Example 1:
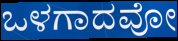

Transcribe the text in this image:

ಒಳಗಾದವೋ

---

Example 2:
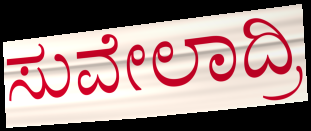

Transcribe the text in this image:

ಸುವೇಲಾದ್ರಿ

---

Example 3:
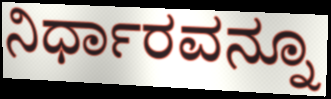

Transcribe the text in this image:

ನಿರ್ಧಾರವನ್ನೂ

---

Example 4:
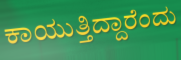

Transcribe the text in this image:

ಕಾಯುತ್ತಿದ್ದಾರೆಂದು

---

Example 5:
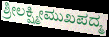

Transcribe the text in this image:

ಶ್ರೀಲಕ್ಷ್ಮೀಮುಖಪದ್ಮ